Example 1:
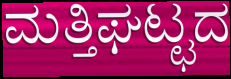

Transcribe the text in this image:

ಮತ್ತಿಘಟ್ಟದ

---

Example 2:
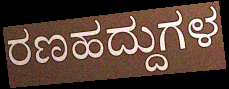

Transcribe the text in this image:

ರಣಹದ್ದುಗಳ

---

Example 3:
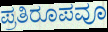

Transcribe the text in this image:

ಪ್ರತಿರೂಪವೂ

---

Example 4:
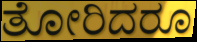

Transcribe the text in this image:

ತೋರಿದರೂ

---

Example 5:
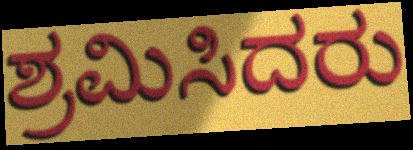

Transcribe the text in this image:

ಶ್ರಮಿಸಿದರು